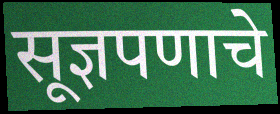
सूज्ञपणाचे